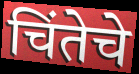
चिंतेचे